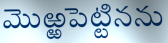
మొఱ్ఱపెట్టినను